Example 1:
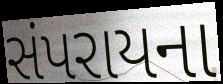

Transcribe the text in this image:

સંપરાયના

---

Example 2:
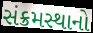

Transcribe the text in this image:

સંક્રમસ્થાનો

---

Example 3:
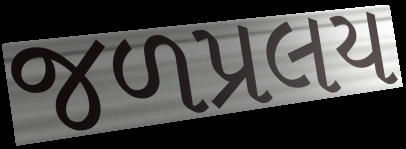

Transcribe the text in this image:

જળપ્રલય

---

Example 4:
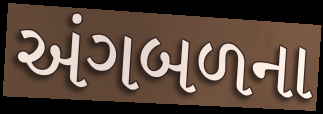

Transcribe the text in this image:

અંગબળના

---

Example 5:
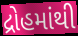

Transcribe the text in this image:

દ્રોહમાંથી